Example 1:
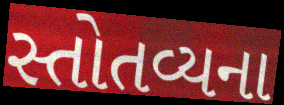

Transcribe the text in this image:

સ્તોતવ્યના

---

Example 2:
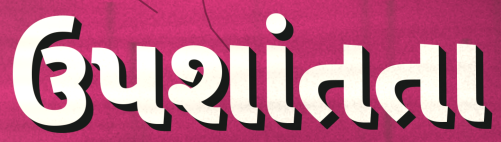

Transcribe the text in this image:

ઉપશાંતતા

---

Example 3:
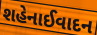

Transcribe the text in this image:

શહેનાઈવાદન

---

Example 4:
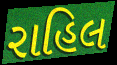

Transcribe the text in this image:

રાહિલ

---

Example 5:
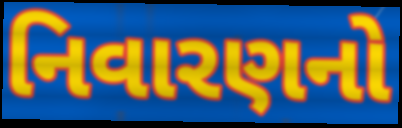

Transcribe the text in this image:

નિવારણનો